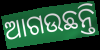
ଆଗଉଛନ୍ତି